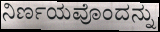
ನಿರ್ಣಯವೊಂದನ್ನು